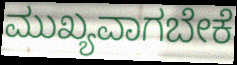
ಮುಖ್ಯವಾಗಬೇಕೆ